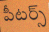
పీటర్స్